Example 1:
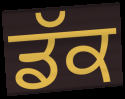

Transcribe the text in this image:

ਡੱਕ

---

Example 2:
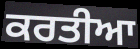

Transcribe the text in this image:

ਕਰਤੀਆ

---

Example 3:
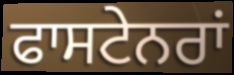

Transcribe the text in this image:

ਫਾਸਟੇਨਰਾਂ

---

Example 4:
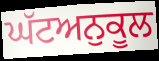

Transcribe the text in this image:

ਘੱਟਅਨੁਕੂਲ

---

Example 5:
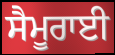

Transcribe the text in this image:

ਸੈਮੂਰਾਈ